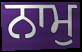
ਨਾਮੁ